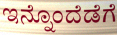
ಇನ್ನೊಂದೆಡೆಗೆ